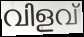
വിളവ്